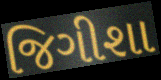
જિગીશા